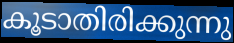
കൂടാതിരിക്കുന്നു